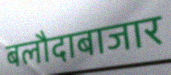
बलौदाबाजार